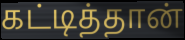
கட்டித்தான்